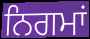
ਨਿਗਮਾਂ